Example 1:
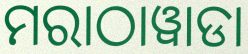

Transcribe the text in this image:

ମରାଠାୱାଡା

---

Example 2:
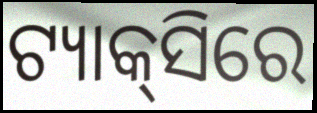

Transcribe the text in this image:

ଟ୍ୟାକ୍‍ସିରେ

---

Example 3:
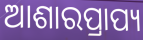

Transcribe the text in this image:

ଆଶାରପ୍ରାପ୍ୟ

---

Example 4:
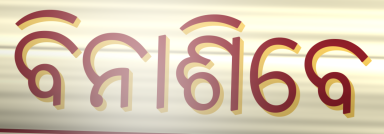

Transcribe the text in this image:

ବିନାଶିବେ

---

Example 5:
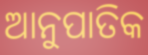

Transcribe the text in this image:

ଆନୁପାତିକ